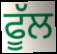
ਫੂੱਲ